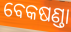
ବେକଷଣ୍ଡା